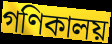
গণিকালয়